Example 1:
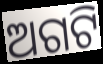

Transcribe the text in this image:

ଅଗଟି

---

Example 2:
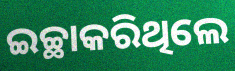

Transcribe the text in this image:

ଇଚ୍ଛାକରିଥିଲେ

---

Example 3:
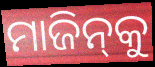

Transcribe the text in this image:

ମାଜିନ୍‌କୁ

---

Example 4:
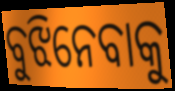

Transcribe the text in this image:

ବୁଝିନେବାକୁ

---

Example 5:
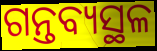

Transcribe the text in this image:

ଗନ୍ତବ୍ୟସ୍ଥଳ